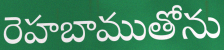
రెహబాముతోను